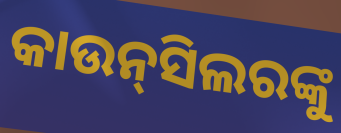
କାଉନ୍‌ସିଲରଙ୍କୁ